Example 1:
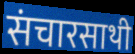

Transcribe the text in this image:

संचारसाथी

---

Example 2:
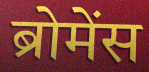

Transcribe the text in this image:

ब्रोमेंस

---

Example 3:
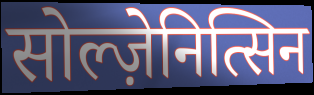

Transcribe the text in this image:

सोल्ज़ेनित्सिन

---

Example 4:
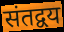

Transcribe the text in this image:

संतद्वय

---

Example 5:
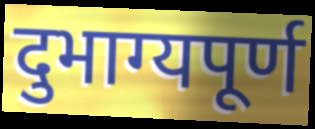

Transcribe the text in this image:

दुभाग्यपूर्ण